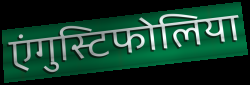
एंगुस्टिफोलिया